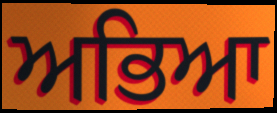
ਅਭਿਆ